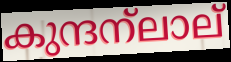
കുന്ദന്ലാല്